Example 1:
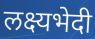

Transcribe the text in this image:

लक्ष्यभेदी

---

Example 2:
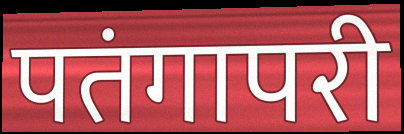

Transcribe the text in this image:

पतंगापरी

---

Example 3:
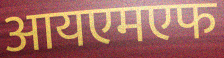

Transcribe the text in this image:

आयएमएफ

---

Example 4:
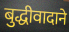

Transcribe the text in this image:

बुद्धीवादाने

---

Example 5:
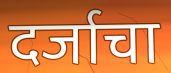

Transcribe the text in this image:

दर्जाचा